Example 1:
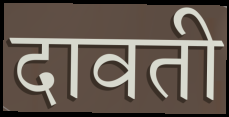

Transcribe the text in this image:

दावती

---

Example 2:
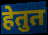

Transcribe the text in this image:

हेतुत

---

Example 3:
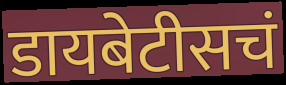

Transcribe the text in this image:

डायबेटीसचं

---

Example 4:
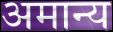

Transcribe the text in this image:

अमान्य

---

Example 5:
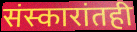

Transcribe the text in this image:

संस्कारांतही